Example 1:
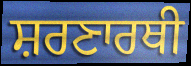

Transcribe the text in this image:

ਸ਼ਰਣਾਰਥੀ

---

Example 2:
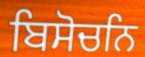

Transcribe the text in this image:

ਬਿਸੋਚਨਿ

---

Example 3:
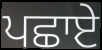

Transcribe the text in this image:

ਪਛਾਏ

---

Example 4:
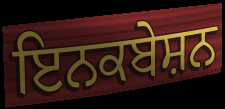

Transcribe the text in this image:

ਇਨਕਬੇਸ਼ਨ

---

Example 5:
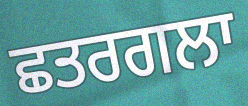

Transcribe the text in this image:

ਛਤਰਗਲਾ